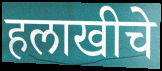
हलाखीचे